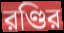
রণ্ডির